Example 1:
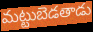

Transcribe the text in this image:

మట్టుబెడతాడు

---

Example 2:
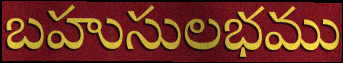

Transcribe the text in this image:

బహుసులభము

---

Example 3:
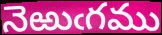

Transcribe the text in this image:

నెఱుఁగము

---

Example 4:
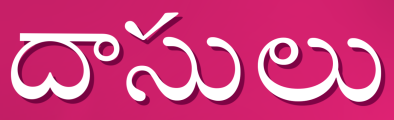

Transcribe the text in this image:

దాసులు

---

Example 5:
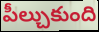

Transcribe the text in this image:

పీల్చుకుంది